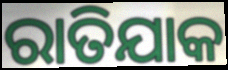
ରାତିଯାକ